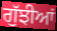
ਗੁੱਝੀਆਂ